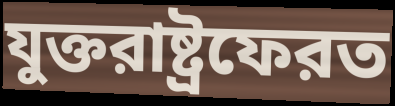
যুক্তরাষ্ট্রফেরত